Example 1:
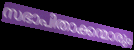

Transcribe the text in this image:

സഭാപിതാക്കന്മാരും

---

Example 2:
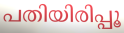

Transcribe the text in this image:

പതിയിരിപ്പൂ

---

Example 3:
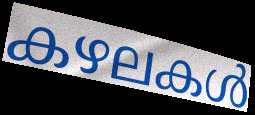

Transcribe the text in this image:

കഴലകൾ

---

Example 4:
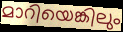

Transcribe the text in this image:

മാറിയെങ്കിലും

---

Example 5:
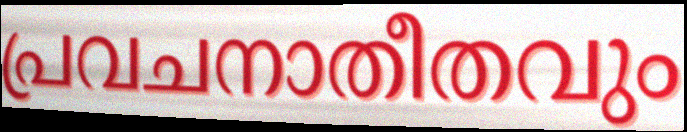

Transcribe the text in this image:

പ്രവചനാതീതവും